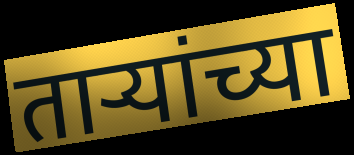
तार्‍यांच्या